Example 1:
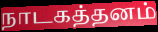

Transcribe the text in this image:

நாடகத்தனம்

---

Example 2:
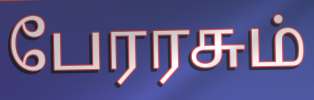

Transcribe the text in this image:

பேரரசும்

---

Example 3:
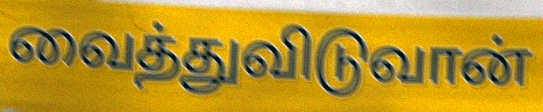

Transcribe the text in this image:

வைத்துவிடுவான்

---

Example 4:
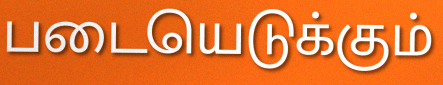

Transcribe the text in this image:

படையெடுக்கும்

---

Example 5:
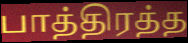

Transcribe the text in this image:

பாத்திரத்த